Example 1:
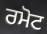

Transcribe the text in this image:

ਰਮੋਟ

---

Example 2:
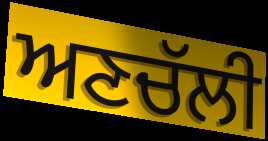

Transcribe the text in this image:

ਅਣਚੱਲੀ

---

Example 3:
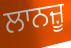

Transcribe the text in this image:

ਲਾਨਜ਼ੂ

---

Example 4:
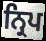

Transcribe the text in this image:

ਨ੍ਰਿਪ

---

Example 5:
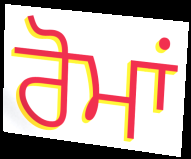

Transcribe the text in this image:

ਰੋਮਾਂ